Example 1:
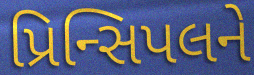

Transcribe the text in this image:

પ્રિન્સિપલને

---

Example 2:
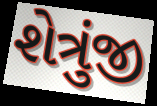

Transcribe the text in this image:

શેત્રુંજી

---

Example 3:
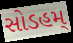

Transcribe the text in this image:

સોડહમ્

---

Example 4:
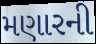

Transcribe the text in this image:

મણારની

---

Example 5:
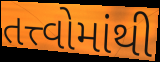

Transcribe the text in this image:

તત્ત્વોમાંથી